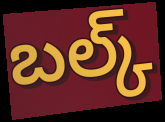
బల్క్